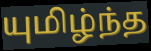
யுமிழ்ந்த